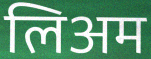
लिअम